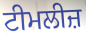
ਟੀਮਲੀਜ਼